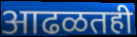
आढळतही